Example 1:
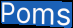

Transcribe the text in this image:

Poms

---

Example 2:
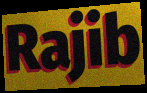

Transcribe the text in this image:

Rajib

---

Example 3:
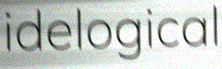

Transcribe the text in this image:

idelogical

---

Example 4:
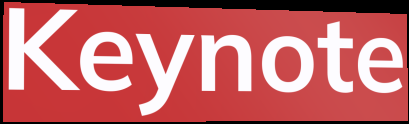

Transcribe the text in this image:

Keynote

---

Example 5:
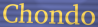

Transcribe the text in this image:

Chondo